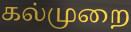
கல்முறை